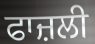
ਫਾਜ਼ਲੀ